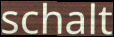
schalt